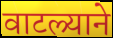
वाटल्याने